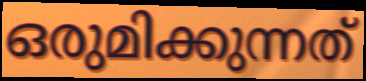
ഒരുമിക്കുന്നത്